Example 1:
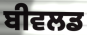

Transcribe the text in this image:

ਬੀਵਲਡ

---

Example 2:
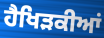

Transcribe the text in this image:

ਹੈਖਿੜਕੀਆਂ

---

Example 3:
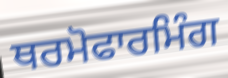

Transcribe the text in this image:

ਥਰਮੋਫਾਰਮਿੰਗ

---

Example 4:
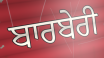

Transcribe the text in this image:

ਬਾਰਬੇਰੀ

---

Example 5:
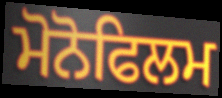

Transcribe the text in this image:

ਮੋਨੋਫਿਲਮ